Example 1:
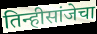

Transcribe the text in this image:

तिन्हीसांजेचा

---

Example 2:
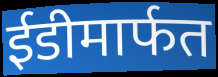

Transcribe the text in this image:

ईडीमार्फत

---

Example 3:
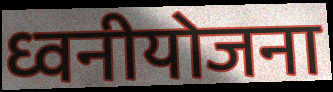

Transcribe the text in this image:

ध्वनीयोजना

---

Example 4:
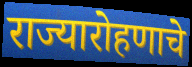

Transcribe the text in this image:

राज्यारोहणाचे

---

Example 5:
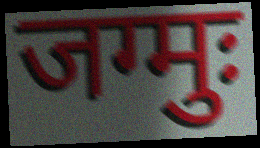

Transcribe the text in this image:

जग्मुः